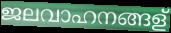
ജലവാഹനങ്ങള്